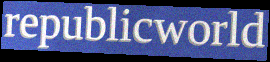
republicworld